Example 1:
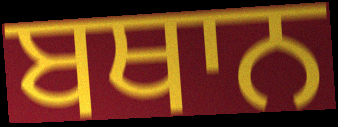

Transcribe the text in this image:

ਬਥਾਨ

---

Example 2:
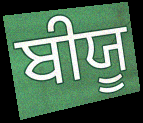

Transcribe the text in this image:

ਬੀਯੂ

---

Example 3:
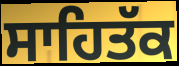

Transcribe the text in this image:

ਸਾਹਿਤੱਕ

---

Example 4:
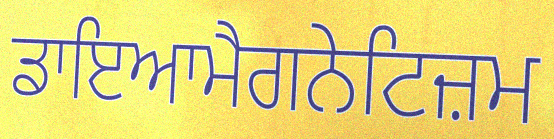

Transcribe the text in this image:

ਡਾਇਆਮੈਗਨੇਟਿਜ਼ਮ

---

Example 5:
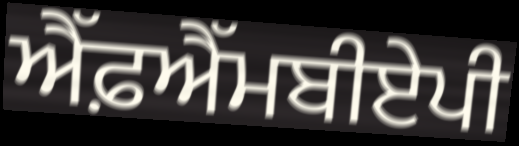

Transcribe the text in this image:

ਐੱਫ਼ਐੱਮਬੀਏਪੀ